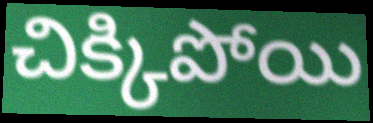
చిక్కిపోయి